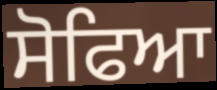
ਸੋਫਿਆ